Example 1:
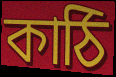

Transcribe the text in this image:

কাঠি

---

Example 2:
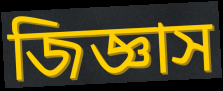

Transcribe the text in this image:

জিজ্ঞাস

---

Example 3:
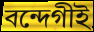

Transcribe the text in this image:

বন্দেগীই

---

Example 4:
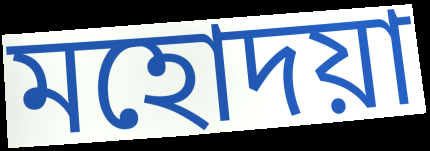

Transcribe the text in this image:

মহোদয়া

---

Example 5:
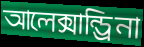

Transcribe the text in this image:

আলেক্সান্ড্রিনা